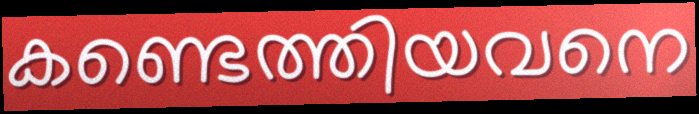
കണ്ടെത്തിയവനെ